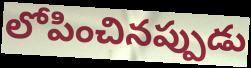
లోపించినప్పుడు